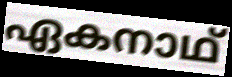
ഏകനാഥ്